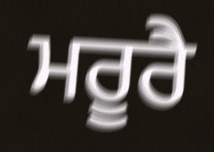
ਮਰੂਰੈ